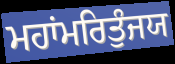
ਮਹਾਂਮਰਿਤੁੰਜਯ